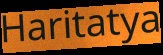
Haritatya